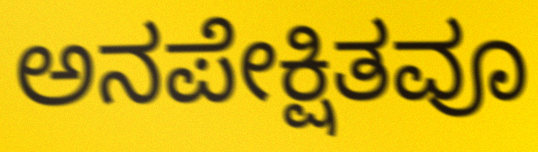
ಅನಪೇಕ್ಷಿತವೂ